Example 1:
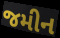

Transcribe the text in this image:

જમીન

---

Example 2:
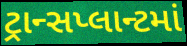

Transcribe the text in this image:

ટ્રાન્સપ્લાન્ટમાં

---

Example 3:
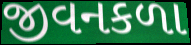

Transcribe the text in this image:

જીવનકળા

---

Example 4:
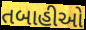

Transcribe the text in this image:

તબાહીઓ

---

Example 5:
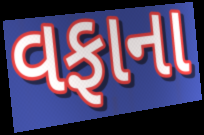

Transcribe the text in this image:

વફાના